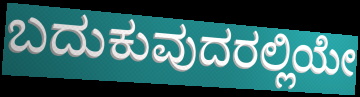
ಬದುಕುವುದರಲ್ಲಿಯೇ